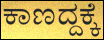
ಕಾಣದ್ದಕ್ಕೆ